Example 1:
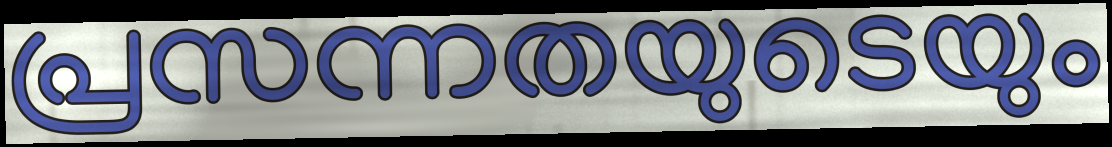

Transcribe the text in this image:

പ്രസന്നതയുടെയും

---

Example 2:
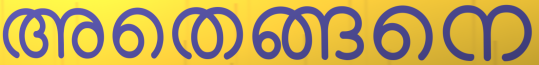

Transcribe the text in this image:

അതെങ്ങനെ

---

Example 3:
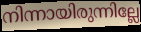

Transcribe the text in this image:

നിന്നായിരുന്നില്ലേ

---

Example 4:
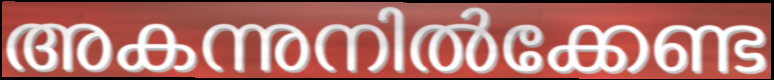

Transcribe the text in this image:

അകന്നുനിൽക്കേണ്ട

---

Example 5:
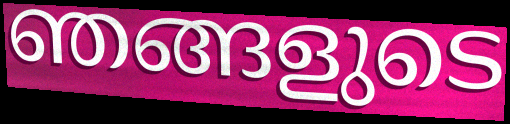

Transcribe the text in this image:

ഞങ്ങളുടെ